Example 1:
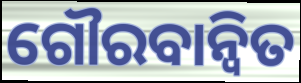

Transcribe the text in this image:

ଗୌରବାନ୍ୱିତ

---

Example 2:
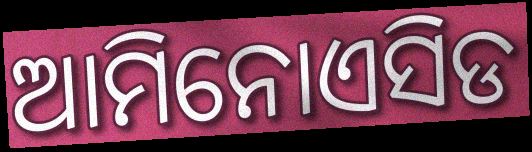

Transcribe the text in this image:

ଆମିନୋଏସିଡ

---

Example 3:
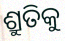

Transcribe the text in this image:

ଶ୍ରୁତିକୁ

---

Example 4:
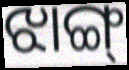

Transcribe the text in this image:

ଝାଙ୍ଗ୍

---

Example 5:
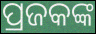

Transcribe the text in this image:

ପ୍ରଜକଙ୍କ